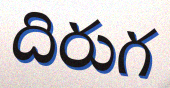
దిరుగ